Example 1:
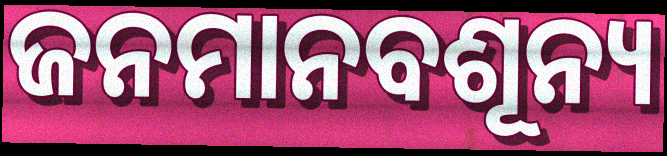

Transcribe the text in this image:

ଜନମାନବଶୂନ୍ୟ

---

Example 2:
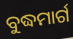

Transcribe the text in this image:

ବୁଦ୍ଧମାର୍ଗ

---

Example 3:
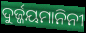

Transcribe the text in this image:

ଦୁର୍ଜ୍ଜୟମାନିନୀ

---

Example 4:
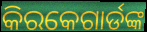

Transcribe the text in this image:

କିରକେଗାର୍ଡଙ୍କ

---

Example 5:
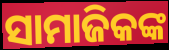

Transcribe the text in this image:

ସାମାଜିକଙ୍କ